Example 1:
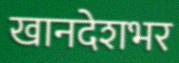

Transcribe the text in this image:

खानदेशभर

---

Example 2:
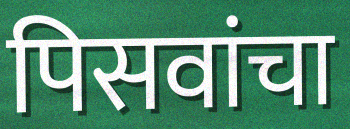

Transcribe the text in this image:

पिसवांचा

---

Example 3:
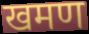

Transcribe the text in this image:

खमण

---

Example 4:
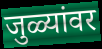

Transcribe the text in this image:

जुळ्यांवर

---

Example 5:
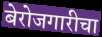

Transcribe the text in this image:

बेरोजगारीचा